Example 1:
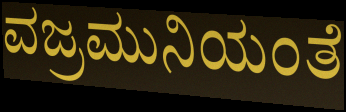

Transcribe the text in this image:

ವಜ್ರಮುನಿಯಂತೆ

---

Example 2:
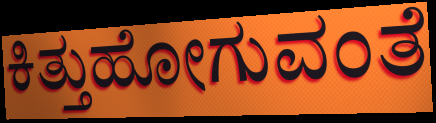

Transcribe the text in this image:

ಕಿತ್ತುಹೋಗುವಂತೆ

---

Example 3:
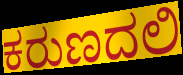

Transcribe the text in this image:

ಕರುಣದಲಿ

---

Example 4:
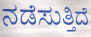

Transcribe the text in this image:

ನಡೆಸುತ್ತಿದೆ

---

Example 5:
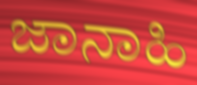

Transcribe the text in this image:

ಜಾನಾಹಿ